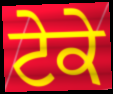
ਟੇਕੇ